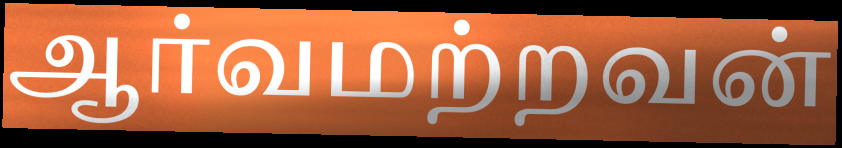
ஆர்வமற்றவன்